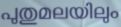
പുതുമലയിലും